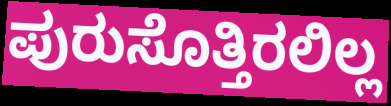
ಪುರುಸೊತ್ತಿರಲಿಲ್ಲ